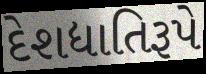
દેશદ્યાતિરૂપે